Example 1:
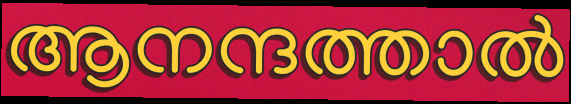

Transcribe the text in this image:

ആനന്ദത്താൽ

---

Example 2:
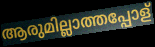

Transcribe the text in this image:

ആരുമില്ലാത്തപ്പോള്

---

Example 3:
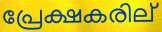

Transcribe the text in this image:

പ്രേക്ഷകരില്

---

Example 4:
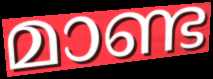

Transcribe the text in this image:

മാണ്ട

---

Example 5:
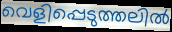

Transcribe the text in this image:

വെളിപ്പെടുത്തലിൽ